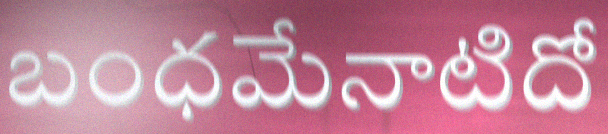
బంధమేనాటిదో